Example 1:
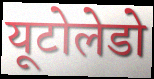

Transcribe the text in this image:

यूटोलेडो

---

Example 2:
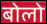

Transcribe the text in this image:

बोलो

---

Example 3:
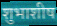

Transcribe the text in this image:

शुभाशीष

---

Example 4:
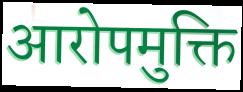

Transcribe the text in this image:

आरोपमुक्ति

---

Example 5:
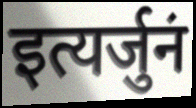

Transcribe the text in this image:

इत्यर्जुनं